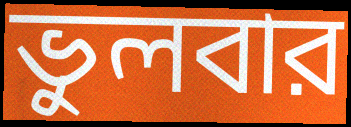
ভুলবার